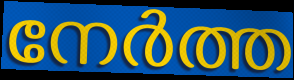
നേർത്ത